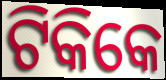
ଟିକିକେ